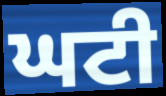
ਘਟੀ